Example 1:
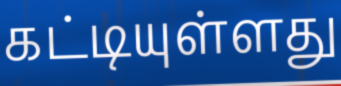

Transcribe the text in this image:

கட்டியுள்ளது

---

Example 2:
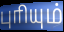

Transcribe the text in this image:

புரியும்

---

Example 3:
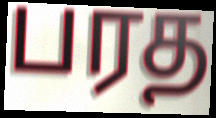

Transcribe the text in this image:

பரத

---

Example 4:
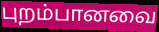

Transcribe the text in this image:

புறம்பானவை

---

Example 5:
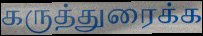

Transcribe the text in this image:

கருத்துரைக்க